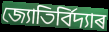
জ্যোতিৰ্বিদ্যাৰ